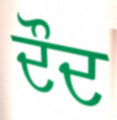
ਦੌਦ